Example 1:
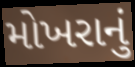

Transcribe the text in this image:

મોખરાનું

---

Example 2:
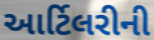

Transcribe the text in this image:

આર્ટિલરીની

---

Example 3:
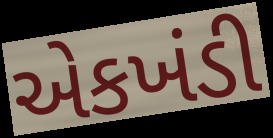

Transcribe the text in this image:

એકખંડી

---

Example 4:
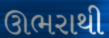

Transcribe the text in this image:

ઊભરાથી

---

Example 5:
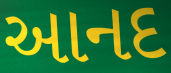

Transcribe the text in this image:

આનદ